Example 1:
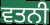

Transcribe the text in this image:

ਵਤਨੀ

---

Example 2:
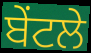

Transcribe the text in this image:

ਬੇਂਟਲੇ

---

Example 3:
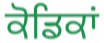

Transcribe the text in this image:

ਕੋਡਿਕਾਂ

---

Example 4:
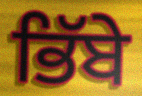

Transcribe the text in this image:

ਭਿੱਬੇ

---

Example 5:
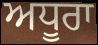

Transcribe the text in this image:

ਅਧੂਰਾ